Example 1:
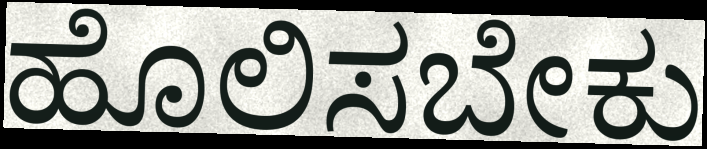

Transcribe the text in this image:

ಹೊಲಿಸಬೇಕು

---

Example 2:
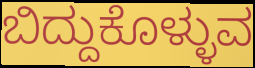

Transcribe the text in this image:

ಬಿದ್ದುಕೊಳ್ಳುವ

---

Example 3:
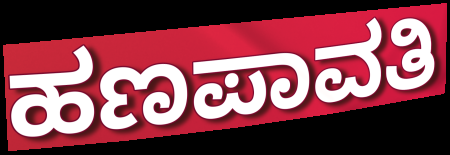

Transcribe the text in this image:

ಹಣಪಾವತಿ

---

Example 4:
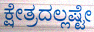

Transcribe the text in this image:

ಕ್ಷೇತ್ರದಲ್ಲಷ್ಟೇ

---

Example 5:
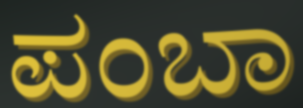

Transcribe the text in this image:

ಪಂಬಾ